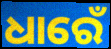
ଧାରେଁ